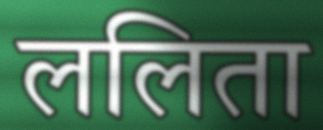
ललिता